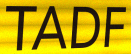
TADF